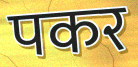
पकर